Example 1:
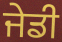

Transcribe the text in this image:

ਜੇਡੀ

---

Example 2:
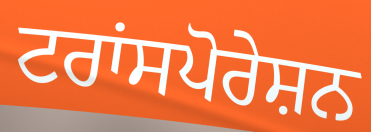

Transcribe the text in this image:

ਟਰਾਂਸਪੋਰੇਸ਼ਨ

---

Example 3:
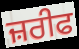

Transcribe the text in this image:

ਜ਼ਰੀਫ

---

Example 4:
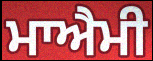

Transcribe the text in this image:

ਮਾਐਮੀ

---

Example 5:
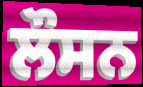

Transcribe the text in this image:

ਲੌਸਨ